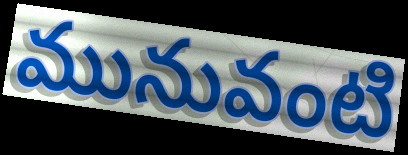
మునువంటి